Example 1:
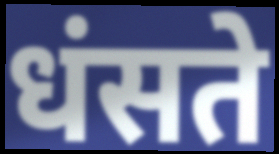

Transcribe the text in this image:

धंसते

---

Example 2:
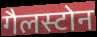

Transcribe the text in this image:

गैलस्टोन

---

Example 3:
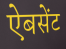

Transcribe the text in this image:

ऐबसेंट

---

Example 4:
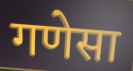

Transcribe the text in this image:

गणेसा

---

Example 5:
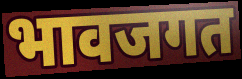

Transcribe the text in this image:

भावजगत